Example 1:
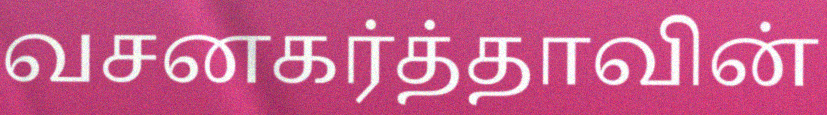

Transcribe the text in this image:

வசனகர்த்தாவின்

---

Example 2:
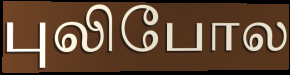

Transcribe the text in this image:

புலிபோல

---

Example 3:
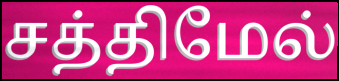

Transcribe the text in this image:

சத்திமேல்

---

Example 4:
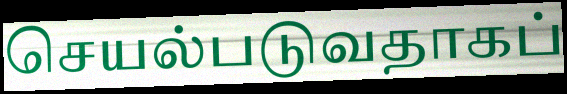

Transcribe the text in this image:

செயல்படுவதாகப்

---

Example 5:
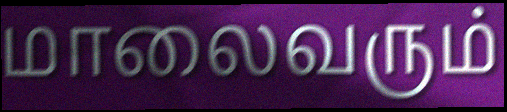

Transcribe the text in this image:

மாலைவரும்